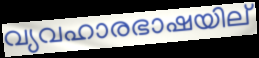
വ്യവഹാരഭാഷയില്